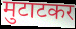
मुटाटकर